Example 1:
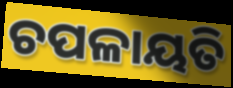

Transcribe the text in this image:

ଚପଳାୟତି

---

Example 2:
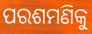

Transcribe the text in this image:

ପରଶମଣିକୁ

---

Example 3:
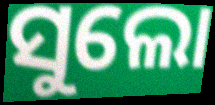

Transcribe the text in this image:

ସୁଲୋ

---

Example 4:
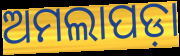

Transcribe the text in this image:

ଅମଲାପଡ଼ା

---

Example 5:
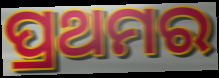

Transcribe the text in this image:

ପ୍ରଥମର